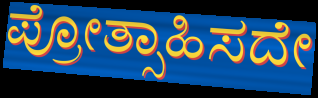
ಪ್ರೋತ್ಸಾಹಿಸದೇ